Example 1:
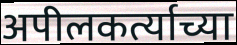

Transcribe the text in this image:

अपीलकर्त्याच्या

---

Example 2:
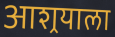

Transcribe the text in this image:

आश्रयाला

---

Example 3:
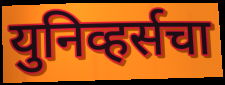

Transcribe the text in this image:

युनिव्हर्सचा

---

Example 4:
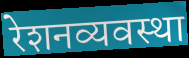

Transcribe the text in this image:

रेशनव्यवस्था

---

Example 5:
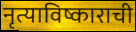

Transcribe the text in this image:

नृत्याविष्काराची